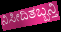
ನಿಸೀದಿತಬ್ಬನ್ತಿ